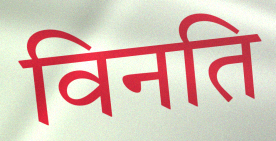
विनति